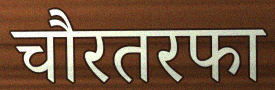
चौरतरफा